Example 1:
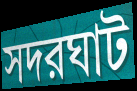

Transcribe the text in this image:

সদরঘাট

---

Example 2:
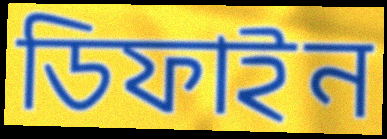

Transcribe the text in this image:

ডিফাইন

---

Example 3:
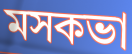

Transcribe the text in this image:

মসকভা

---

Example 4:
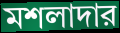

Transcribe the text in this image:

মশলাদার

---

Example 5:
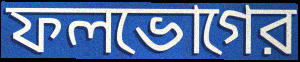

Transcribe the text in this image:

ফলভোগের